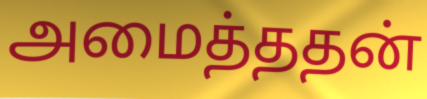
அமைத்ததன்